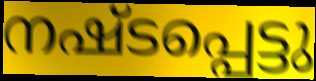
നഷ്ടപ്പെട്ടു